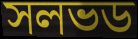
সলভড